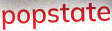
popstate